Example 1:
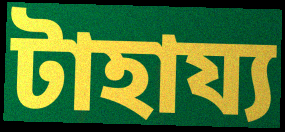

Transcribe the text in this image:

টাহায্য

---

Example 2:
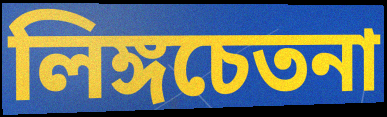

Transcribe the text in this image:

লিঙ্গচেতনা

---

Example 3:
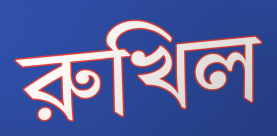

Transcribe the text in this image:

রুখিল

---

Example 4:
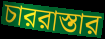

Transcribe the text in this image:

চাররাস্তার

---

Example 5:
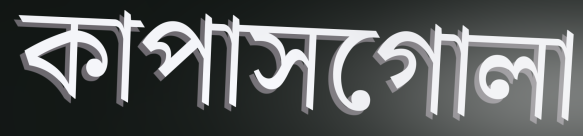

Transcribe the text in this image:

কাপাসগোলা